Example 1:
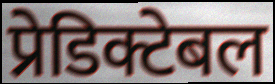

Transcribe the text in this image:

प्रेडिक्टेबल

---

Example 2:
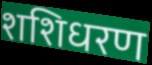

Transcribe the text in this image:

शशिधरण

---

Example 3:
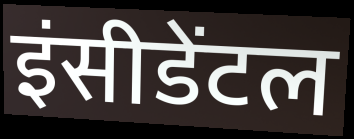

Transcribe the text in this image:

इंसीडेंटल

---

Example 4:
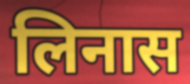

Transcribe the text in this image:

लिनास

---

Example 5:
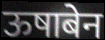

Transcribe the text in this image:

ऊषाबेन